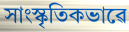
সাংস্কৃতিকভাৱে